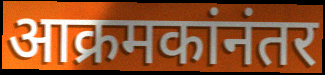
आक्रमकांनंतर